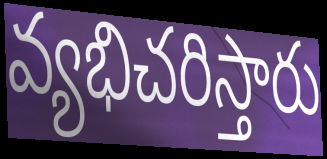
వ్యభిచరిస్తారు